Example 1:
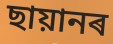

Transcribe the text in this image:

ছায়ানৰ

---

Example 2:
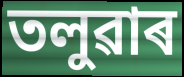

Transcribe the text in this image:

তলুৱাৰ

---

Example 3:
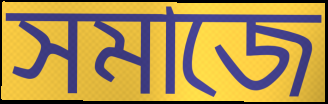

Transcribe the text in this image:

সমাজে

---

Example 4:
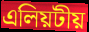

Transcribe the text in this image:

এলিয়টীয়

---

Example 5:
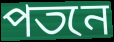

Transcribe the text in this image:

পতনে